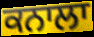
ਕਨਾਲਾ